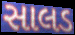
સાલડ